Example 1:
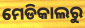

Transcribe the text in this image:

ମେଡିକାଲରୁ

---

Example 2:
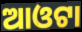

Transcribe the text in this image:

ଆଓଟା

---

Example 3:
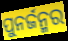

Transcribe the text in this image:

ପୁନର୍ଜନ୍ମର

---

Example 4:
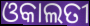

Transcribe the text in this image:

ଓକାଲତୀ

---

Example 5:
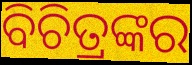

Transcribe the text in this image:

ବିଚିତ୍ରଙ୍କର